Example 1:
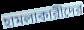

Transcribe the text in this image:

হামলাকারীদের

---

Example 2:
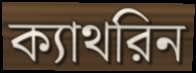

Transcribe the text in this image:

ক্যাথরিন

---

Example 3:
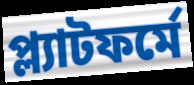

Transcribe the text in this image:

প্ল্যাটফর্মে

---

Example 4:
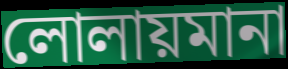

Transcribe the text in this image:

লোলায়মানা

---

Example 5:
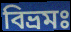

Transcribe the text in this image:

বিভ্রমঃ